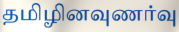
தமிழினவுணர்வு